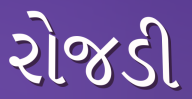
રોજડી